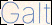
Galt